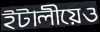
ইটালীয়েও